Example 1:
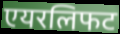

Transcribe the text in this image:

एयरलिफट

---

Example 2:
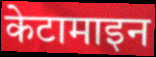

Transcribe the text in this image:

केटामाइन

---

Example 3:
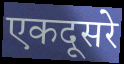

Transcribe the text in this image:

एकदूसरे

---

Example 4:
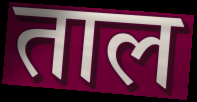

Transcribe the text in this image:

ताल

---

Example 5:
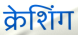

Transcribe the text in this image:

क्रेशिंग